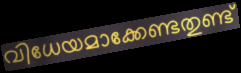
വിധേയമാക്കേണ്ടതുണ്ട്